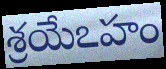
శ్రయేఽహం